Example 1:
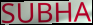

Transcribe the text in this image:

SUBHA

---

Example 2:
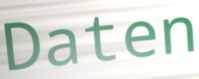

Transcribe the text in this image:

Daten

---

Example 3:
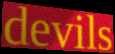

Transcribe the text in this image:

devils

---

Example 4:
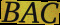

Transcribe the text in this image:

BAC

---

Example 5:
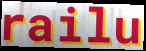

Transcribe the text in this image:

railu